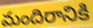
మందిరానికి